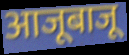
आजूबाजू